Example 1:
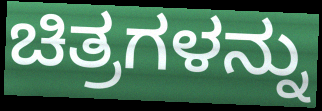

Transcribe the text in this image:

ಚಿತ್ರಗಳನ್ನು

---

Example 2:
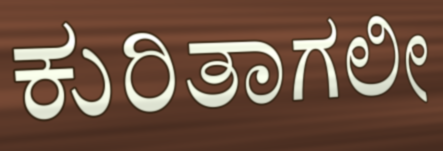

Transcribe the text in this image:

ಕುರಿತಾಗಲೀ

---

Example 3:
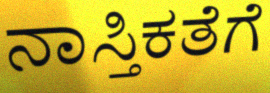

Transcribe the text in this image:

ನಾಸ್ತಿಕತೆಗೆ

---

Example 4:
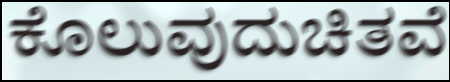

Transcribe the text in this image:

ಕೊಲುವುದುಚಿತವೆ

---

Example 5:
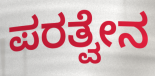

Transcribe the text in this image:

ಪರತ್ವೇನ